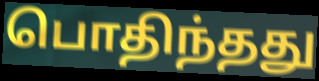
பொதிந்தது